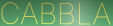
CABBLA